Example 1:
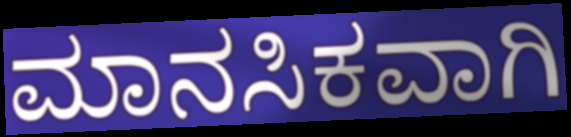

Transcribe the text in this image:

ಮಾನಸಿಕವಾಗಿ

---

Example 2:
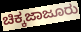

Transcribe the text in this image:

ಚಿಕ್ಕಜಾಜೂರು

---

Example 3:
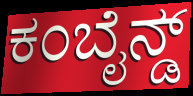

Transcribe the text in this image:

ಕಂಬೈನ್ಡ್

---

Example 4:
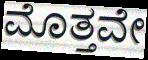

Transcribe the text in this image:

ಮೊತ್ತವೇ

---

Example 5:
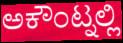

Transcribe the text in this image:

ಅಕೌಂಟ್ನಲ್ಲಿ